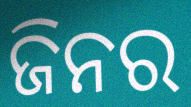
ଜିନର